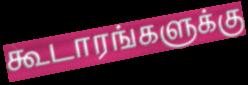
கூடாரங்களுக்கு